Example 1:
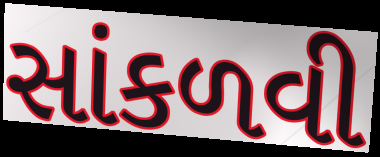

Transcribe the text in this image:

સાંકળવી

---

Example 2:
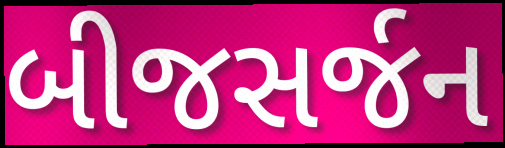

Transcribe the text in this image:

બીજસર્જન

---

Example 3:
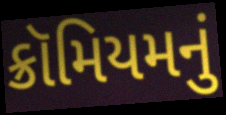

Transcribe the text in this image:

ક્રૉમિયમનું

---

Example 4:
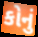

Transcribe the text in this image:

કોનું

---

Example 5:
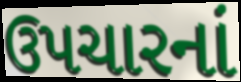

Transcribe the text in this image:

ઉપચારનાં